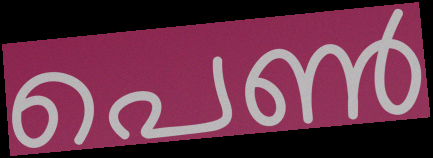
പെൺ